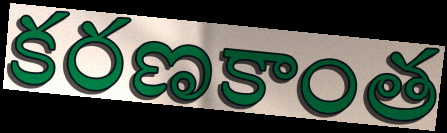
కరణకాంత